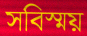
সবিস্ময়